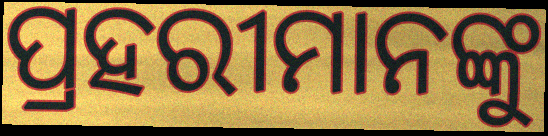
ପ୍ରହରୀମାନଙ୍କୁ